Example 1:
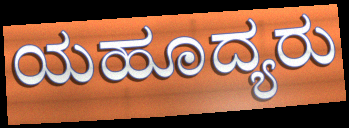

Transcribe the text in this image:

ಯಹೂದ್ಯರು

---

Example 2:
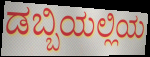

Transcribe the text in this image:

ಡಬ್ಬಿಯಲ್ಲಿಯ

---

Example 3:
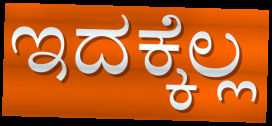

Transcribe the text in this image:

ಇದಕ್ಕೆಲ್ಲ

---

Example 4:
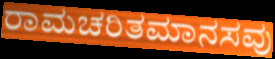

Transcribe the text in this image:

ರಾಮಚರಿತಮಾನಸವು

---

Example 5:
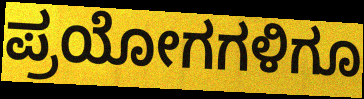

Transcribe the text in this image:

ಪ್ರಯೋಗಗಳಿಗೂ